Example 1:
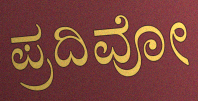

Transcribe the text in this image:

ಪ್ರದಿವೋ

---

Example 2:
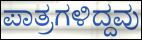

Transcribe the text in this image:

ಪಾತ್ರಗಳಿದ್ದವು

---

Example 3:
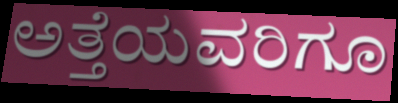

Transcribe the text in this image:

ಅತ್ತೆಯವರಿಗೂ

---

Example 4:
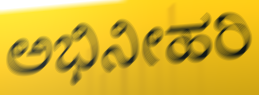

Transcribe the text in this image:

ಅಭಿನೀಹರಿ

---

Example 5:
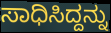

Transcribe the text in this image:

ಸಾಧಿಸಿದ್ದನ್ನು